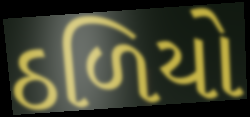
ઠળિયો